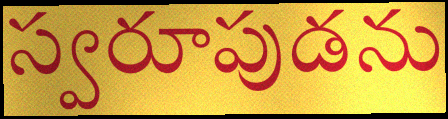
స్వరూపుడను